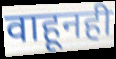
वाहूनही